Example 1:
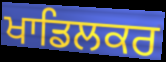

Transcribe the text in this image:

ਖਾਡਿਲਕਰ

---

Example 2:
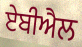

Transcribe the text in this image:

ਏਬੀਐਲ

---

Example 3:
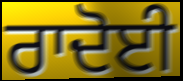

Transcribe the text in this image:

ਰਾਦੋਈ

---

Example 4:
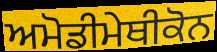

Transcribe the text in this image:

ਅਮੋਡੀਮੇਥੀਕੋਨ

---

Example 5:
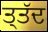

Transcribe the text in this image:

ਤ੍ਤੱਦ